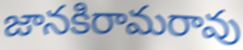
జానకిరామరావు